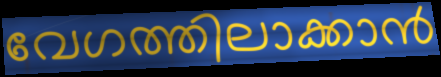
വേഗത്തിലാക്കാൻ